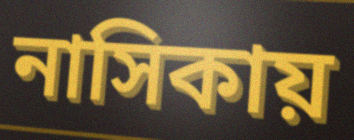
নাসিকায়